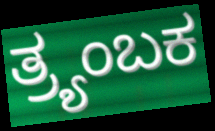
ತ್ರ್ಯಂಬಕ